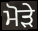
ਮੋੜੇ